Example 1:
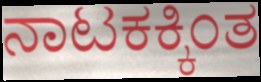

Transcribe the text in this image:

ನಾಟಕಕ್ಕಿಂತ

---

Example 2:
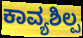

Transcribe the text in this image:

ಕಾವ್ಯಶಿಲ್ಪ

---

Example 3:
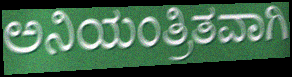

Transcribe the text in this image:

ಅನಿಯಂತ್ರಿತವಾಗಿ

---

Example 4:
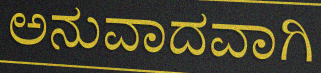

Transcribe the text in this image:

ಅನುವಾದವಾಗಿ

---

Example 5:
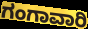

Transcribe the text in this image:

ಗಂಗಾವಾರಿ